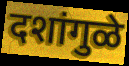
दशांगुळे